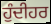
ਹੁੰਦੀਹਰ